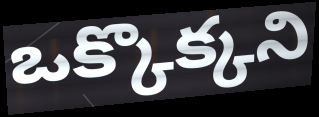
ఒక్కొక్కని